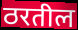
ठरतील